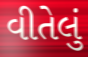
વીતેલું